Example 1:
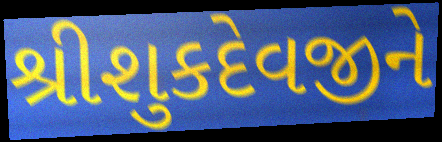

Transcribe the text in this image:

શ્રીશુકદેવજીને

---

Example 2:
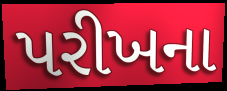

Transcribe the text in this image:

પરીખના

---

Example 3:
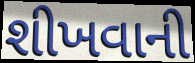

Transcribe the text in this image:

શીખવાની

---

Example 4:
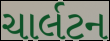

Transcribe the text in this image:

ચાર્લટન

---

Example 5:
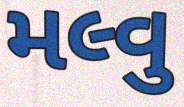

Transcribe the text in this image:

મલ્વુ